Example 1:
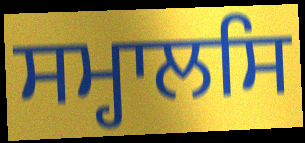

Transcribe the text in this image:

ਸਮ੍ਹ੍ਹਾਲਸਿ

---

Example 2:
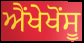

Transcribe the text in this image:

ਐਂਖੇਖੋਂਸੂ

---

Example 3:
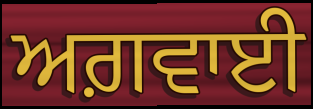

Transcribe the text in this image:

ਅਗ਼ਵਾਈ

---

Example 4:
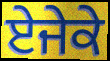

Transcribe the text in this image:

ਏਜੇਕੇ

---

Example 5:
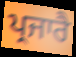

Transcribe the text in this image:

ਪ੍ਰਜਾਰੈ